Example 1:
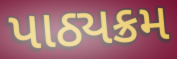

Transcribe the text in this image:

પાઠ્યક્રમ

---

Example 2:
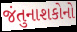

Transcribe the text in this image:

જંતુનાશકોનો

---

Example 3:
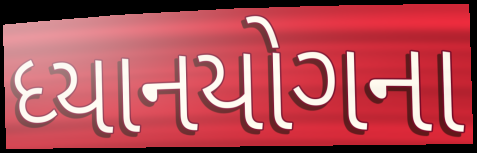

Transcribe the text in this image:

ધ્યાનયોગના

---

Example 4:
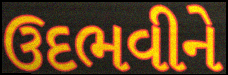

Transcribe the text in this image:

ઉદભવીને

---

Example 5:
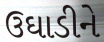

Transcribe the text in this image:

ઉઘાડીને